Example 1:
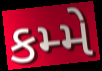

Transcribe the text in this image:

કમ્મે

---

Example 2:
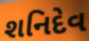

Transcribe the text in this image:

શનિદેવ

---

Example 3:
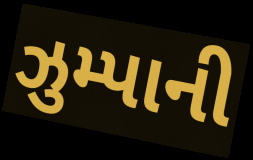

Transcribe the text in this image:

ઝુમ્પાની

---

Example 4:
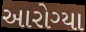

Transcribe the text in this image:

આરોગ્યા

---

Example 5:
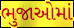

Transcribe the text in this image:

ભુજાઓમાં